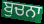
ਬੁਚਨਾ